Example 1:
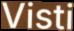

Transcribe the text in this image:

Visti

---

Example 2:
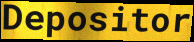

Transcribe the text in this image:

Depositor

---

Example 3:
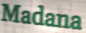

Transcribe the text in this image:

Madana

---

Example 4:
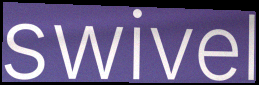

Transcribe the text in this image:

swivel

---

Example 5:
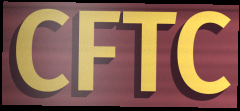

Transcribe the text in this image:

CFTC